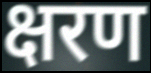
क्षरण